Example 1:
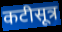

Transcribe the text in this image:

कटीसूत्र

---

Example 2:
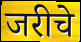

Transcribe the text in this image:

जरीचे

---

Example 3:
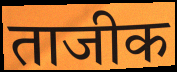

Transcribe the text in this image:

ताजीक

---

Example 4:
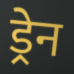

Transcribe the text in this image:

ड्रेन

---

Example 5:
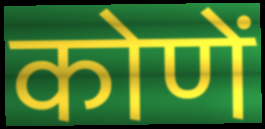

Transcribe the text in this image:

कोणें